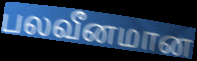
பலவீனமான